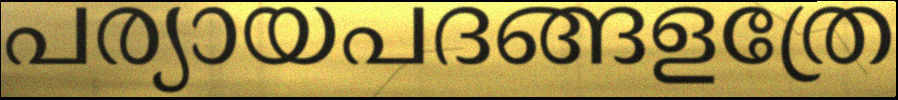
പര്യായപദങ്ങളത്രേ